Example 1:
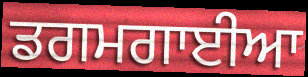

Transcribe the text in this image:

ਡਗਮਗਾਈਆ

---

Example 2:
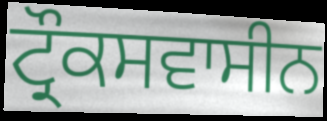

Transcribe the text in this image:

ਟ੍ਰੌਕਸਵਾਸੀਨ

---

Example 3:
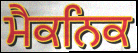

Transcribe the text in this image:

ਮੈਕਨਿਕ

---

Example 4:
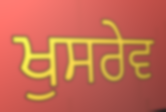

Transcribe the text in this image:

ਖੁਸਰੇਵ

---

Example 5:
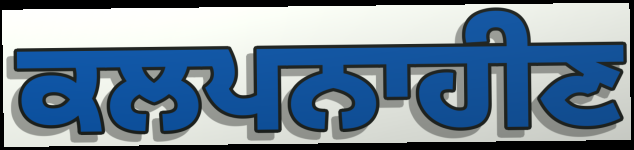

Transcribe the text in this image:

ਕਲਪਨਾਹੀਣ